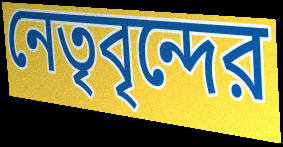
নেতৃবৃন্দের